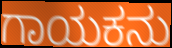
ಗಾಯಕನು